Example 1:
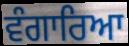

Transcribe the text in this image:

ਵੰਗਾਰਿਆ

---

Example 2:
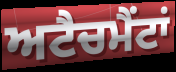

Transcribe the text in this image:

ਅਟੈਚਮੈਂਟਾਂ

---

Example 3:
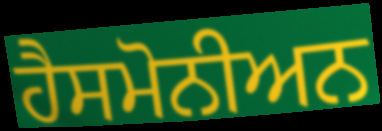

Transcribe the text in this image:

ਹੈਸਮੋਨੀਅਨ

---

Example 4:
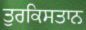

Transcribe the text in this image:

ਤੁਰਕਿਸਤਾਨ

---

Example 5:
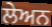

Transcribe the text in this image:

ਲੇਅਨ